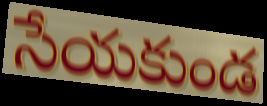
సేయకుండ